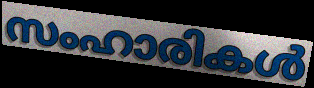
സംഹാരികൾ